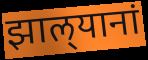
झाल्यानां